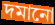
দমানো